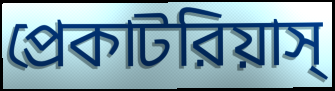
প্রেকাটরিয়াস্